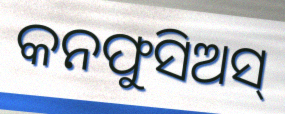
କନଫୁସିଅସ୍